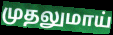
முதலுமாய்